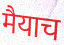
मैयाच